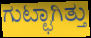
ಗುಟ್ಟಾಗಿತ್ತು